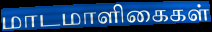
மாடமாளிகைகள்